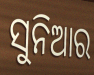
ସୁନିଆର